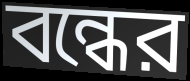
বন্ধের